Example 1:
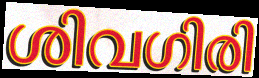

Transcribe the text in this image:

ശിവഗിരി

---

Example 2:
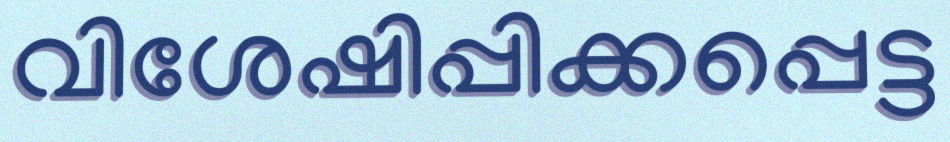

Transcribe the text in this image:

വിശേഷിപ്പിക്കപ്പെട്ട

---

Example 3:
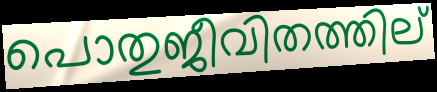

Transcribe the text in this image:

പൊതുജീവിതത്തില്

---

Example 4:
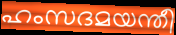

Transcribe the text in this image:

ഹംസദമയന്തീ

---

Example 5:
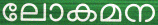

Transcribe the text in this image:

ലോകമന